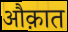
औक़ात